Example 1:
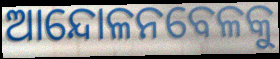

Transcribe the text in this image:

ଆନ୍ଦୋଳନବେଳକୁ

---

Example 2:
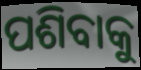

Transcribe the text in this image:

ପଶିବାକୁ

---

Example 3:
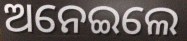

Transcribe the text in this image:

ଅନେଇଲେ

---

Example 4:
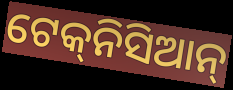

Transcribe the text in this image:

ଟେକ୍‌ନିସିଆନ୍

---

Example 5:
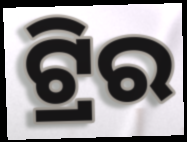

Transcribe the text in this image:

ଟ୍ରିର